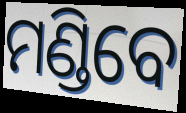
ମଣ୍ଡିବେ